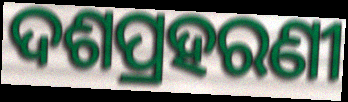
ଦଶପ୍ରହରଣୀ